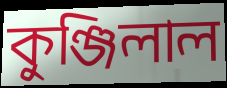
কুঞ্জিলাল